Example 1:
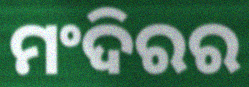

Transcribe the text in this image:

ମଂଦିରର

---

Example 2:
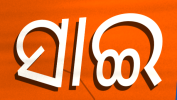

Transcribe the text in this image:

ସାଇ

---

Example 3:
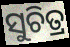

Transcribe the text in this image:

ସୁଚିତ୍ର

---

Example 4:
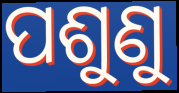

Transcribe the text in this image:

ପଶୁଣୁ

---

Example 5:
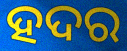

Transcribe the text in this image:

ହଦର